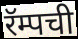
रॅम्पची